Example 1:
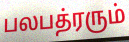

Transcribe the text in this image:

பலபத்ரரும்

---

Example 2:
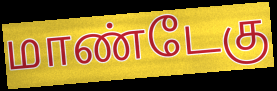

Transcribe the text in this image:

மாண்டேகு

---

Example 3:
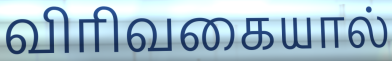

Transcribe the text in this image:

விரிவகையால்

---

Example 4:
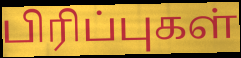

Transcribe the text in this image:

பிரிப்புகள்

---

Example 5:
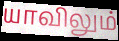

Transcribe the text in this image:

யாவிலும்